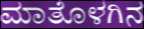
ಮಾತೊಳಗಿನ